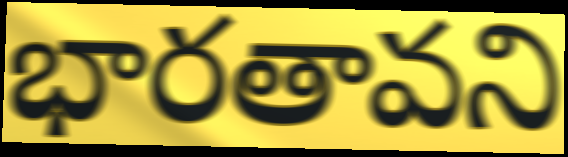
భారతావని